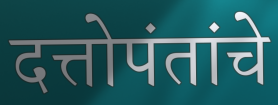
दत्तोपंतांचे